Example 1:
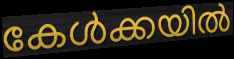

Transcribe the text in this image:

കേൾക്കയിൽ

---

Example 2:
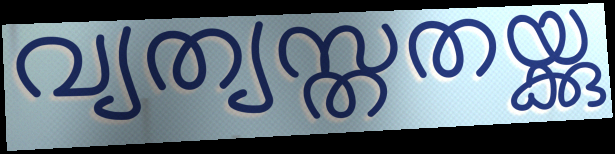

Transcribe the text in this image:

വ്യത്യസ്തതയ്ക്കു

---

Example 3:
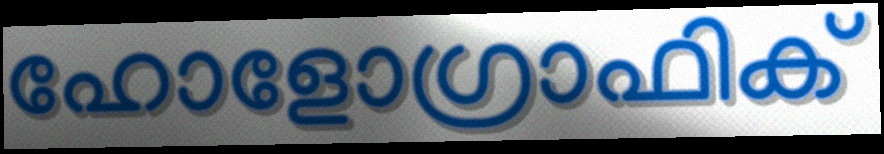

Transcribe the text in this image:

ഹോളോഗ്രാഫിക്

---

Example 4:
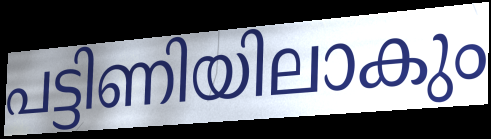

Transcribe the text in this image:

പട്ടിണിയിലാകും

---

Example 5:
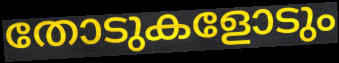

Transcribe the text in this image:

തോടുകളോടും